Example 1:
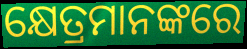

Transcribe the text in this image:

କ୍ଷେତ୍ରମାନଙ୍କରେ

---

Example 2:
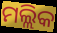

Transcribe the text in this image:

ମଲ୍ଲିକ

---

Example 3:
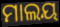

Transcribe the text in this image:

ମାଲୟ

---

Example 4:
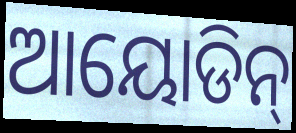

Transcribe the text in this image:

ଆୟୋଡିନ୍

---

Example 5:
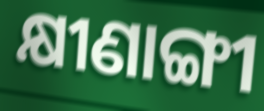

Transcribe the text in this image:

କ୍ଷୀଣାଙ୍ଗୀ